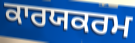
ਕਾਰਯਕਰਮ